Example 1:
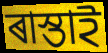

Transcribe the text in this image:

ৰাস্তাই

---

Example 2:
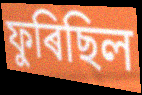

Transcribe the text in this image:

ফুৰিছিল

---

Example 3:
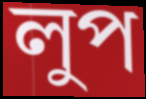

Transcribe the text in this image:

লুপ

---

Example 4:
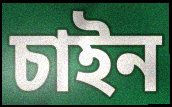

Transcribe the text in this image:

চাইন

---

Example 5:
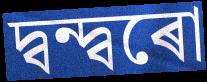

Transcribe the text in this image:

দ্বন্দ্বৰো